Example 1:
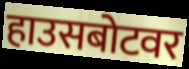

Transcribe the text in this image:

हाउसबोटवर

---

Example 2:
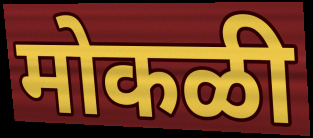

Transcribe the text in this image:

मोकळी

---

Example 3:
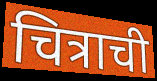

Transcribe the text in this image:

चित्राची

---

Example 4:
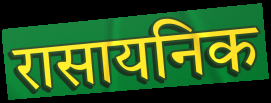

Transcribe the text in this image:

रासायनिक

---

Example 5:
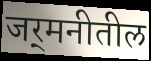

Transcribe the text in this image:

जर्मनीतील